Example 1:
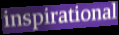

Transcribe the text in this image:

inspirational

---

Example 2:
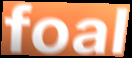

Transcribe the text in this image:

foal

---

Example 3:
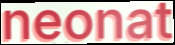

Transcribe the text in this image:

neonat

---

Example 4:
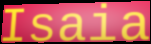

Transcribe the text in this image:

Isaia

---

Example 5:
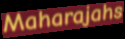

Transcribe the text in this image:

Maharajahs